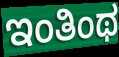
ಇಂತಿಂಥ